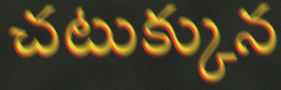
చటుక్కున